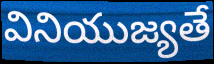
వినియుజ్యతే